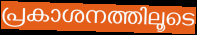
പ്രകാശനത്തിലൂടെ